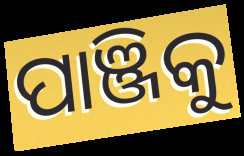
ପାଞ୍ଜିକୁ